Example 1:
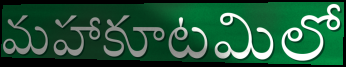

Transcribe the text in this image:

మహాకూటమిలో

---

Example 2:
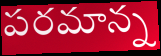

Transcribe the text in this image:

పరమాన్న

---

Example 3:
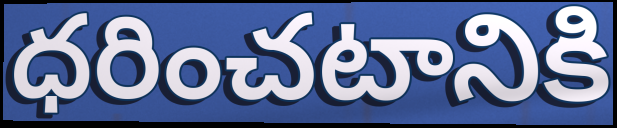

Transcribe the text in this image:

ధరించటానికి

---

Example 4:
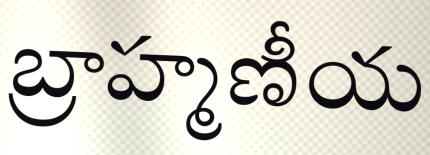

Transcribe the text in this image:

బ్రాహ్మణీయ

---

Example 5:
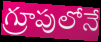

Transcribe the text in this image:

గ్రూపులోనే